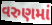
વરુણમાં